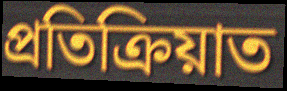
প্ৰতিক্ৰিয়াত